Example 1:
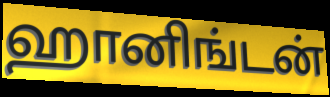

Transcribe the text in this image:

ஹானிங்டன்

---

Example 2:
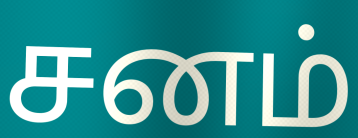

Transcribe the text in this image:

சனம்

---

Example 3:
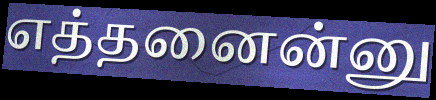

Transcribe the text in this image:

எத்தனைன்னு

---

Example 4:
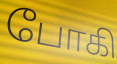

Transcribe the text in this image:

போகி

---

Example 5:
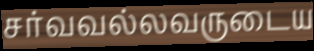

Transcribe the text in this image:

சர்வவல்லவருடைய